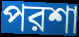
পরশা